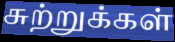
சுற்றுக்கள்